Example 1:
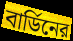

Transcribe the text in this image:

বার্ডিনের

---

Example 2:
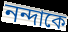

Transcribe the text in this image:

নন্দাকে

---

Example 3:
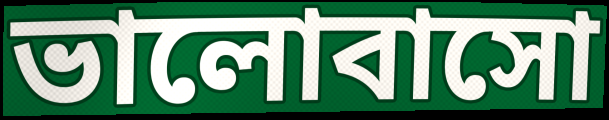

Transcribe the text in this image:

ভালোবাসো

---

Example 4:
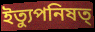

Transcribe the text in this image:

ইত্যুপনিষত্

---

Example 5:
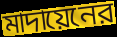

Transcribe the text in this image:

মাদায়েনের